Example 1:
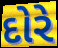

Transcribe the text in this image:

દોરે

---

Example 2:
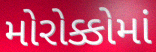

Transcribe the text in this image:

મોરોક્કોમાં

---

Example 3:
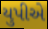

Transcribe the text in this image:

યુપીએ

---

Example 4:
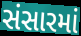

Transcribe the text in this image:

સંસારમાં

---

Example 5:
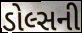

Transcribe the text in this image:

ડોલ્સની